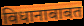
विधानाबाबत